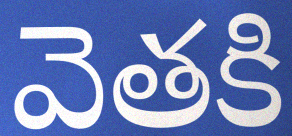
వెతకి